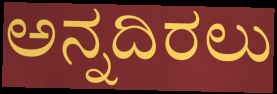
ಅನ್ನದಿರಲು